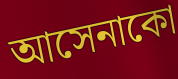
আসেনাকো